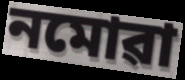
নমোৱা